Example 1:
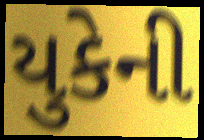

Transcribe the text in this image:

યુકેની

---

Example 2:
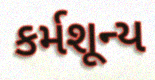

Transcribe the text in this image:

કર્મશૂન્ય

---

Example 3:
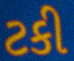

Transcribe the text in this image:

ટકી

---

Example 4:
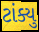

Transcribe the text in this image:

ટાંક્યુ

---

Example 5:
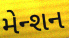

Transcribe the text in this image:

મેન્શન